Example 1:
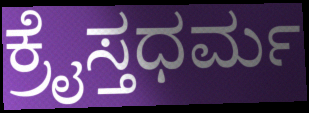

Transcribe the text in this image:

ಕ್ರೈಸ್ತಧರ್ಮ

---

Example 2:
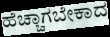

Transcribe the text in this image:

ಹೆಚ್ಚಾಗಬೇಕಾದ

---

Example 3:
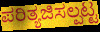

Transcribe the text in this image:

ಪರಿತ್ಯಜಿಸಲ್ಪಟ್ಟ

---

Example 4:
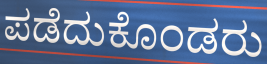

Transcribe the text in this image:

ಪಡೆದುಕೊಂಡರು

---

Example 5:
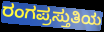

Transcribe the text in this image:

ರಂಗಪ್ರಸ್ತುತಿಯ